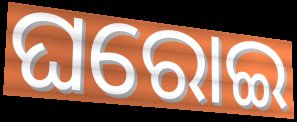
ଘରୋଇ